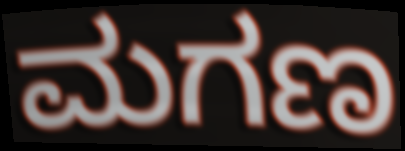
ಮಗಣ